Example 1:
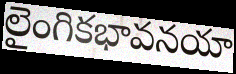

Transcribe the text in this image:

లైంగికభావనయా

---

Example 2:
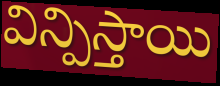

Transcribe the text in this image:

విన్పిస్తాయి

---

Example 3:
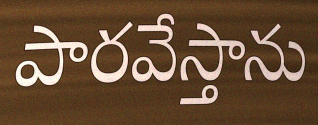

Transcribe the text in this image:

పారవేస్తాను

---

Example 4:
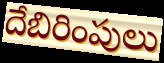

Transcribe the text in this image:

దేబిరింపులు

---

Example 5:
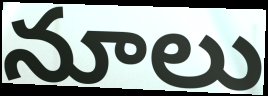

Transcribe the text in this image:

నూలు